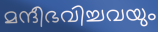
മന്ദീഭവിച്ചവയും